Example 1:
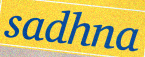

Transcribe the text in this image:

sadhna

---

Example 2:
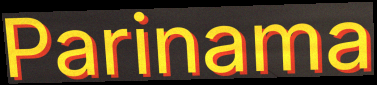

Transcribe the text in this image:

Parinama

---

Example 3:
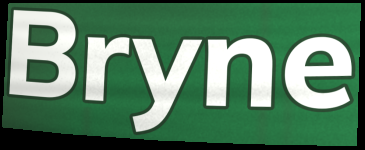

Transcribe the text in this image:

Bryne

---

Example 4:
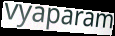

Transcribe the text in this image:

vyaparam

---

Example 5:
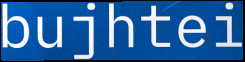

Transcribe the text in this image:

bujhtei